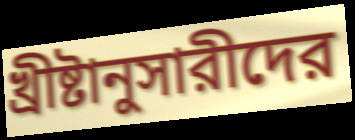
খ্রীষ্টানুসারীদের